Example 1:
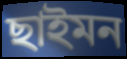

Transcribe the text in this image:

ছাইমন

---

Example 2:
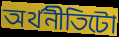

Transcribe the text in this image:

অৰ্থনীতিটো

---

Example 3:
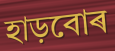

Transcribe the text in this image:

হাড়বোৰ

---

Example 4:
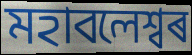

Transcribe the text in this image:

মহাবলেশ্বৰ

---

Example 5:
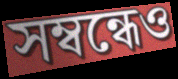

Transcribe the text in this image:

সম্বন্ধেও